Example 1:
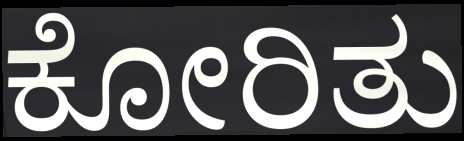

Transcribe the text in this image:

ಕೋರಿತು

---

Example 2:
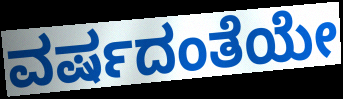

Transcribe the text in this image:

ವರ್ಷದಂತೆಯೇ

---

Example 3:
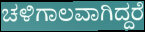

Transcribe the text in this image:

ಚಳಿಗಾಲವಾಗಿದ್ದರೆ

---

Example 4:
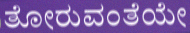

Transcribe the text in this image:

ತೋರುವಂತೆಯೇ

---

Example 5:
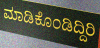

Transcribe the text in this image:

ಮಾಡಿಕೊಂಡಿದ್ದಿರಿ